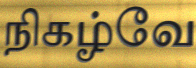
நிகழ்வே